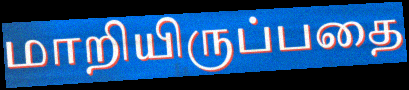
மாறியிருப்பதை